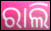
ରାଲି